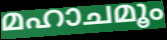
മഹാചമൂം